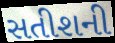
સતીશની